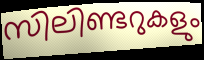
സിലിണ്ടറുകളും